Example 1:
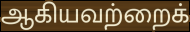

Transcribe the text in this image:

ஆகியவற்றைக்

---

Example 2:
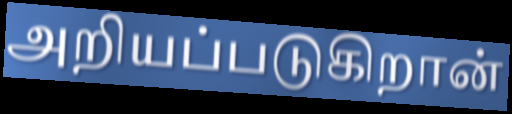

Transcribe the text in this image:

அறியப்படுகிறான்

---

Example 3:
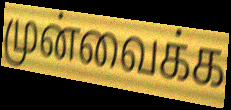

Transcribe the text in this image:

முன்வைக்க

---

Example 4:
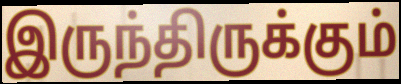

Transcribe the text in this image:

இருந்திருக்கும்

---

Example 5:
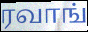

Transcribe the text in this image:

ரவாங்